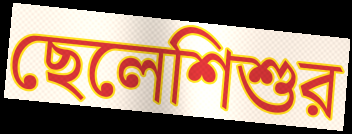
ছেলেশিশুর